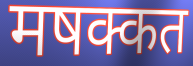
मषक्कत